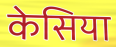
केसिया